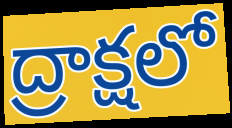
ద్రాక్షలో